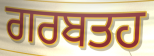
ਗਰਬਤਹ